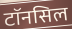
टॉनसिल